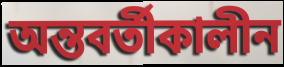
অন্তবর্তীকালীন